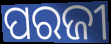
ପରଜୀ